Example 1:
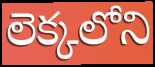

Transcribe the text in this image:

లెక్కలోని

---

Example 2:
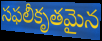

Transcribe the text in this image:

సఫలీకృతమైన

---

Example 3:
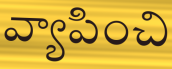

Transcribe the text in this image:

వ్యాపించి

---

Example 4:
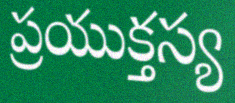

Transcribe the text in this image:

ప్రయుక్తస్య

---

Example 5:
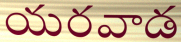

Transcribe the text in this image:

యరవాడ